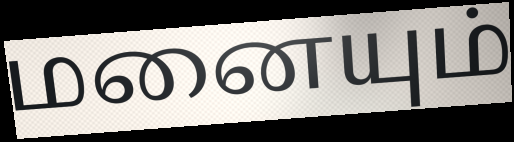
மனையும்